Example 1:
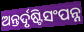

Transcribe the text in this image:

ଅନ୍ତର୍ଦୃଷ୍ଟିସଂପନ୍ନ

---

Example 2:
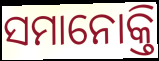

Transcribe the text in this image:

ସମାନୋକ୍ତି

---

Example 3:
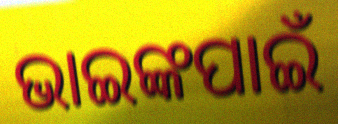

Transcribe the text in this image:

ଭାଇଙ୍କପାଇଁ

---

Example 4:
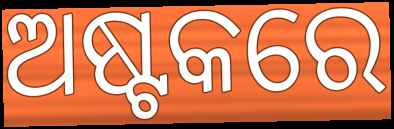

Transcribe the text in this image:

ଅଷ୍ଟକରେ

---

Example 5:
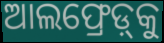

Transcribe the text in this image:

ଆଲଫ୍ରେଡ଼୍‍କୁ